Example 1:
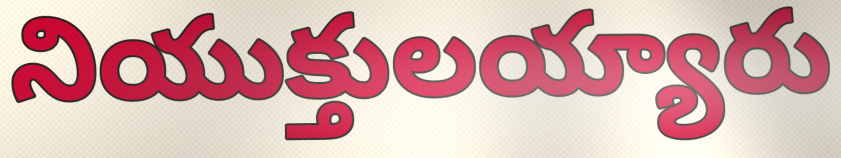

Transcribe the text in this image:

నియుక్తులయ్యారు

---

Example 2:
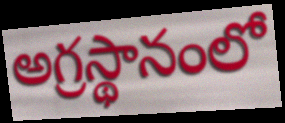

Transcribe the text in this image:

అగ్రస్థానంలో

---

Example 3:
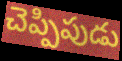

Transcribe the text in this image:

చెప్పిపుడు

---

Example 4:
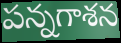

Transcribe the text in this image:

పన్నగాశన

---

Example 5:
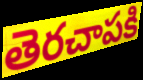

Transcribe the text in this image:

తెరచాపకి